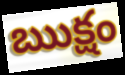
ఋక్షం